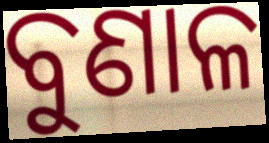
ବୁଣାଳ